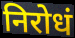
निरोधं